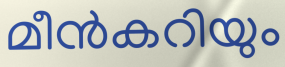
മീൻകറിയും